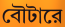
বৌটারে